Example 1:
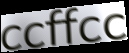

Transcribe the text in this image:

ccffcc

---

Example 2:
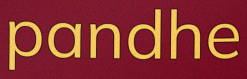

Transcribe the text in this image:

pandhe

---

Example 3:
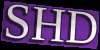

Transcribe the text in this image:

SHD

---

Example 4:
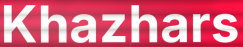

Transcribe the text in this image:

Khazhars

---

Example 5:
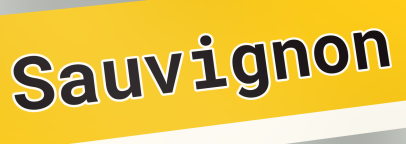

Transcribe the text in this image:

Sauvignon